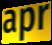
apr